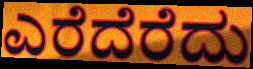
ಎರೆದೆರೆದು